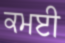
ਕਮਈ